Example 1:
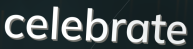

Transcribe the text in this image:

celebrate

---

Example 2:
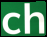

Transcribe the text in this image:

ch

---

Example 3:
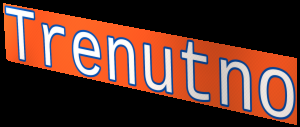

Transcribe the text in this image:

Trenutno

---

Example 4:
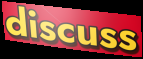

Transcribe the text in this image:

discuss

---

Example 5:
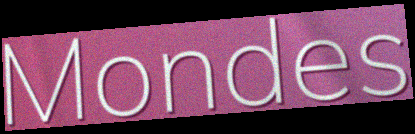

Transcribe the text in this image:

Mondes